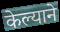
केल्‍याने